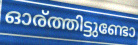
ഓര്ത്തിട്ടുണ്ടോ